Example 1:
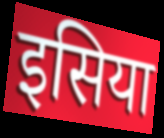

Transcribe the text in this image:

इसिया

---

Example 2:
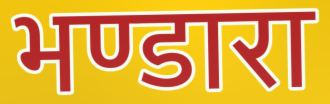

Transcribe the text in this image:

भण्डारा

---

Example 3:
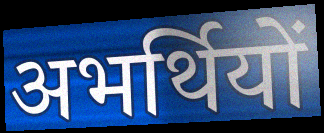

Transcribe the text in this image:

अभर्थियों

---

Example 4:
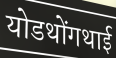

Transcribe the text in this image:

योडथोंगथाई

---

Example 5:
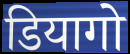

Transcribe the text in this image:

डियागो